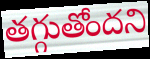
తగ్గుతోందని